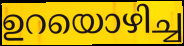
ഉറയൊഴിച്ച